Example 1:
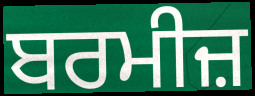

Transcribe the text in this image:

ਬਰਮੀਜ਼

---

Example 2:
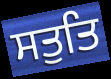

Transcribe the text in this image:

ਸਤੁਤਿ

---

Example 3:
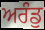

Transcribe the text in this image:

ਅਰੰਡੁ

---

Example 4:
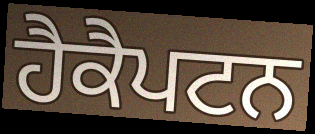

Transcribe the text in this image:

ਹੈਕੈਪਟਨ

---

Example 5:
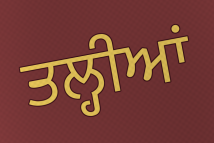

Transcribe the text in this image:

ਤਲ੍ਹੀਆਂ